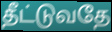
தீட்டுவதே